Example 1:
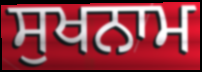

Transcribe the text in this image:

ਸੁਖਨਾਮ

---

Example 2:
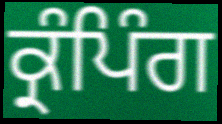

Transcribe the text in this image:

ਕ੍ਰੰਪਿੰਗ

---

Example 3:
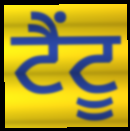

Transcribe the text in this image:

ਟੈਂਟੂ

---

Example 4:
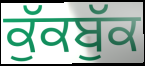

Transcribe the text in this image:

ਕੁੱਕਬੁੱਕ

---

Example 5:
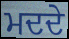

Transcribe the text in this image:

ਮਦਦੇ